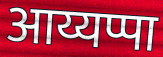
आय्यप्पा